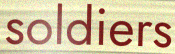
soldiers